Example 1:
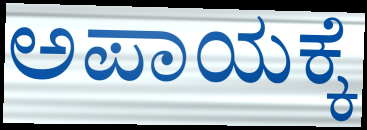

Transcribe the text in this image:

ಅಪಾಯಕ್ಕೆ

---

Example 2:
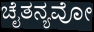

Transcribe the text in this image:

ಚೈತನ್ಯವೋ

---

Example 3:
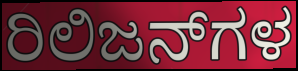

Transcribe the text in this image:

ರಿಲಿಜನ್‌ಗಳ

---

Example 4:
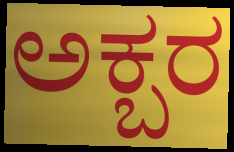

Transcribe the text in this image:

ಅಕ್ಬರ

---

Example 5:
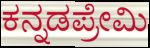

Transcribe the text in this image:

ಕನ್ನಡಪ್ರೇಮಿ